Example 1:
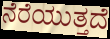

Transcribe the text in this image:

ನೆರೆಯುತ್ತದೆ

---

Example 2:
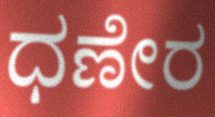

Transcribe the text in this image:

ಧಣೇರ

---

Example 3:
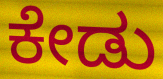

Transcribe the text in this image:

ಕೇಡು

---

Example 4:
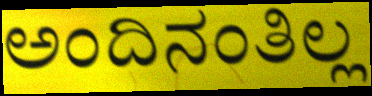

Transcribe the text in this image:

ಅಂದಿನಂತಿಲ್ಲ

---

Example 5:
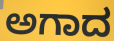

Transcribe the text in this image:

ಅಗಾದ